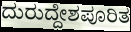
ದುರುದ್ದೇಶಪೂರಿತ